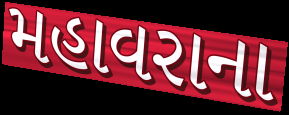
મહાવરાના